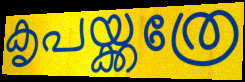
കൃപയ്ക്കത്രേ